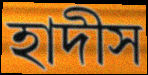
হাদীস